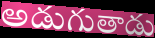
అడుగుతాడు